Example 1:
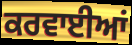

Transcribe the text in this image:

ਕਰਵਾਈਆਂ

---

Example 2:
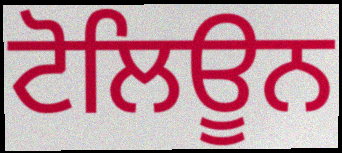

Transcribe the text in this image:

ਟੋਲਿਊਨ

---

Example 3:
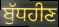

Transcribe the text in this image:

ਬੁੱਧਹੀਣ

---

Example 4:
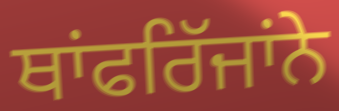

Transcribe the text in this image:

ਥਾਂਫਰਿੱਜਾਂਨੇ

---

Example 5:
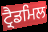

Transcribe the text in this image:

ਟ੍ਰੈਡਮਿਲ